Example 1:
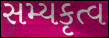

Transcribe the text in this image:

સમ્યકૃત્વ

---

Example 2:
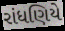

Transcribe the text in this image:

રાંધણિયે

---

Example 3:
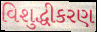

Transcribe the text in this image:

વિશુદ્ધીકરણ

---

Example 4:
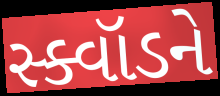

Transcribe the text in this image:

સ્ક્વૉડને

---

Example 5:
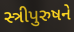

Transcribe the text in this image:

સ્ત્રીપુરુષને